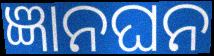
ଜ୍ଞାନଘନ